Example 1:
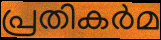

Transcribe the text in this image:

പ്രതികർമ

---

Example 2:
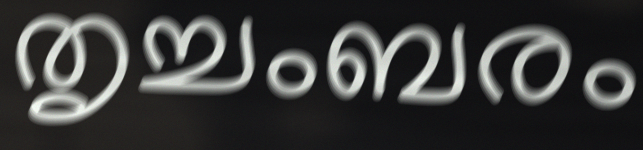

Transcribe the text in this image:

തൃച്ചംബരം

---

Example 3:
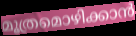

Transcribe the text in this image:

മൂത്രമൊഴിക്കാൻ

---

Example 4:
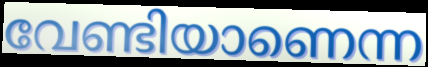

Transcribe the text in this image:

വേണ്ടിയാണെന്ന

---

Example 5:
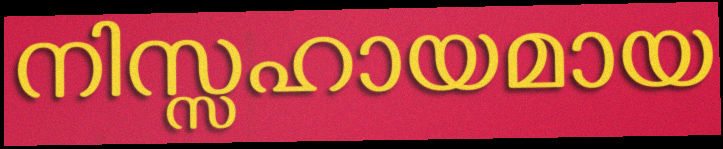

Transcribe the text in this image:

നിസ്സഹായമായ